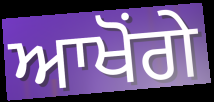
ਆਖੋਂਗੇ